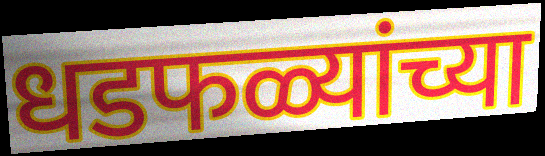
धडफळ्यांच्या